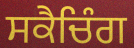
ਸਕੈਚਿੰਗ